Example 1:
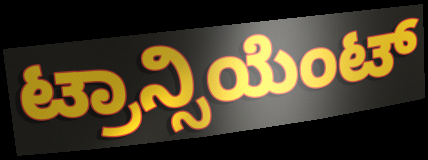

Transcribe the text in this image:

ಟ್ರಾನ್ಸಿಯೆಂಟ್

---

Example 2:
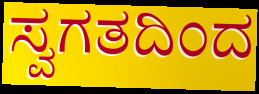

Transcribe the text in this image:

ಸ್ವಗತದಿಂದ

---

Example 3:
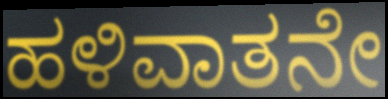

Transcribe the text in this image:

ಹಳಿವಾತನೇ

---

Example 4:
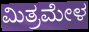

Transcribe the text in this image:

ಮಿತ್ರಮೇಳ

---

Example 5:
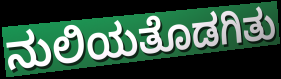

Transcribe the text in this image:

ನುಲಿಯತೊಡಗಿತು